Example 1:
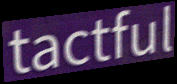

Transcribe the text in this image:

tactful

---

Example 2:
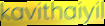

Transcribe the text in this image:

kavithaiyil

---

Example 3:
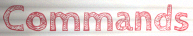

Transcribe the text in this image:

Commands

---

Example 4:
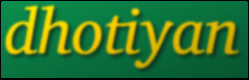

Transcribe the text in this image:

dhotiyan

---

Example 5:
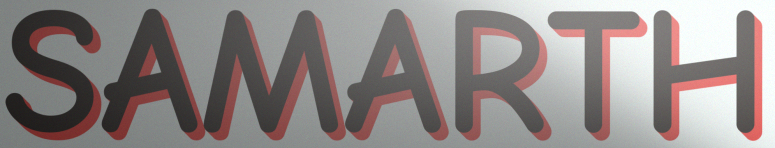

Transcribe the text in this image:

SAMARTH